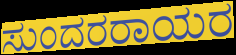
ಸುಂದರರಾಯರ